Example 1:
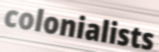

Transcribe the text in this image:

colonialists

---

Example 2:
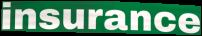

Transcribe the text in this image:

insurance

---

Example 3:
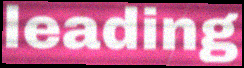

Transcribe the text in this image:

leading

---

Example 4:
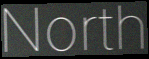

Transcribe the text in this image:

North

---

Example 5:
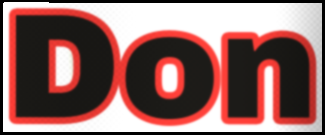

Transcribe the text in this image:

Don